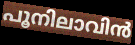
പൂനിലാവിൻ